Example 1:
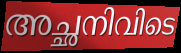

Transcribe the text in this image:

അച്ഛനിവിടെ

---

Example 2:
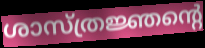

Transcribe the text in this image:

ശാസ്ത്രജ്ഞന്റെ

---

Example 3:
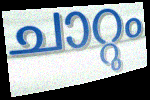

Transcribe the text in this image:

ചാറ്റും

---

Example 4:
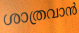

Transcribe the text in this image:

ശാത്രവാൻ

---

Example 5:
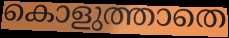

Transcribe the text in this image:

കൊളുത്താതെ